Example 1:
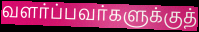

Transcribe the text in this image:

வளர்ப்பவர்களுக்குத்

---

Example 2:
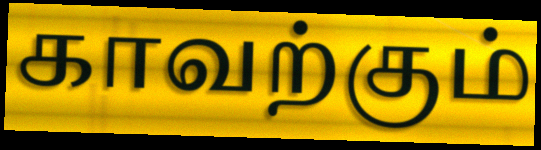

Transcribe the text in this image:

காவற்கும்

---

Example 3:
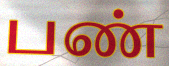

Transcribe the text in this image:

பண்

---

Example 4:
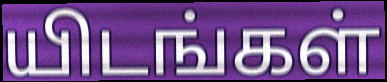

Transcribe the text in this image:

யிடங்கள்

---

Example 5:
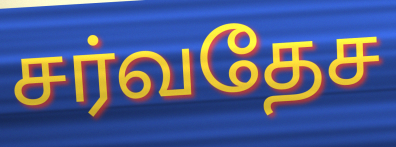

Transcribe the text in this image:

சர்வதேச